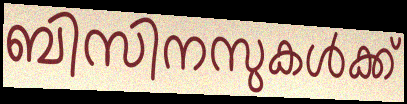
ബിസിനസുകൾക്ക്